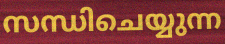
സന്ധിചെയ്യുന്ന